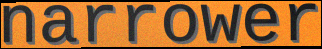
narrower